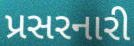
પ્રસરનારી